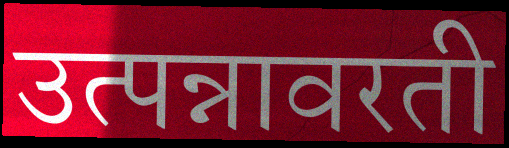
उत्पन्नावरती